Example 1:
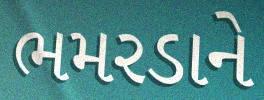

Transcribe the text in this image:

ભમરડાને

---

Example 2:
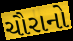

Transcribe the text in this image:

ચૌરાનો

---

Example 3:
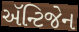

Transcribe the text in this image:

ઍન્ટિજેન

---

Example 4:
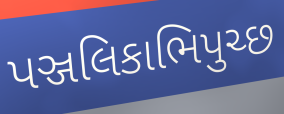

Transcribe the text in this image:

પઞ્જલિકાભિપુચ્છ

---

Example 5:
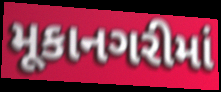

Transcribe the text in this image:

મૂકાનગરીમાં